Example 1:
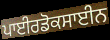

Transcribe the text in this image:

ਪਾਈਰਡੋਕਸਾਈਨ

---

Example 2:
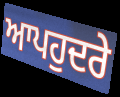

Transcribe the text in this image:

ਆਪਹੁਦਰੇ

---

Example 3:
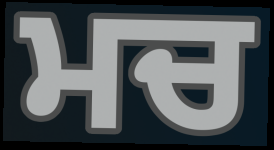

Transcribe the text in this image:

ਮਚ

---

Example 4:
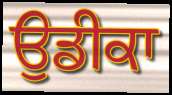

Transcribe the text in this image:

ਉਡੀਕਾ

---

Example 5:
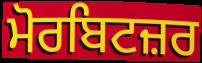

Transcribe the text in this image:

ਮੋਰਬਿਟਜ਼ਰ